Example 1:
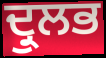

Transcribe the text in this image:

ਦ੍ਰੁਲਭ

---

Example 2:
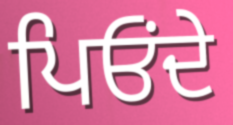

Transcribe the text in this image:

ਪਿਓਂਦੇ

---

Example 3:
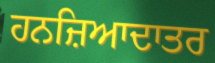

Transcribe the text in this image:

ਹਨਜ਼ਿਆਦਾਤਰ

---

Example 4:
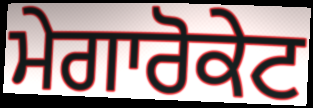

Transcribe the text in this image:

ਮੇਗਾਰੋਕੇਟ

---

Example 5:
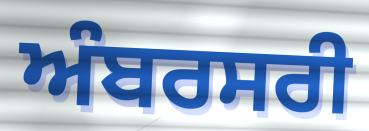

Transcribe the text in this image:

ਅੰਬਰਸਰੀ